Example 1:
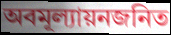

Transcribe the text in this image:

অবমূল্যায়নজনিত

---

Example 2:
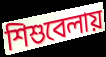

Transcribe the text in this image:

শিশুবেলায়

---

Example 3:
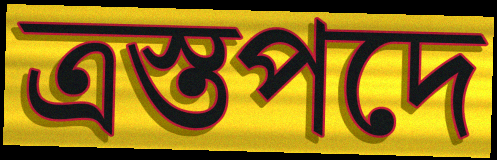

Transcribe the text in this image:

ত্রস্তপদে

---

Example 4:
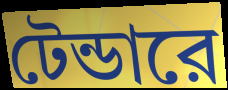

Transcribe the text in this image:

টেন্ডারে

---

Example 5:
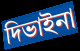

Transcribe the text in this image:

দিভাইনা